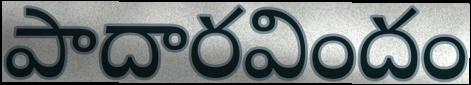
పాదారవిందం